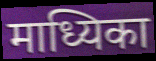
माध्यिका